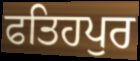
ਫਤਿਹਪੁਰ